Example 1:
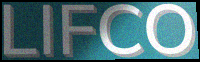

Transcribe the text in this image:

LIFCO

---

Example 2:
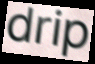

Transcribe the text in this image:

drip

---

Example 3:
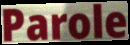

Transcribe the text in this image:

Parole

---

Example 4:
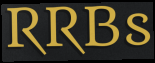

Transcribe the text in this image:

RRBs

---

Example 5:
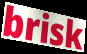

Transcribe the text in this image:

brisk